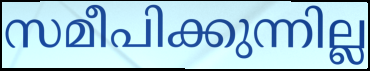
സമീപിക്കുന്നില്ല